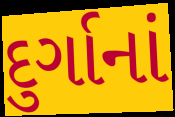
દુર્ગાનાં